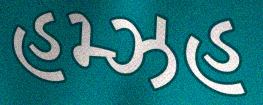
હમ્ઝહ